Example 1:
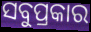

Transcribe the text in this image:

ସବୁପ୍ରକାର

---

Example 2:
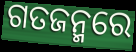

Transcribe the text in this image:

ଗତଜନ୍ମରେ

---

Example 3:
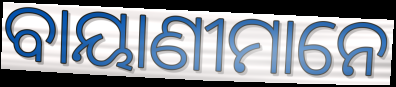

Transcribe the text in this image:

ବାୟାଣୀମାନେ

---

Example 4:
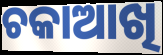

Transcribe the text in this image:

ଚକାଆଖି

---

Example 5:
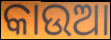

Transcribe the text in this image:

କାଉଆ